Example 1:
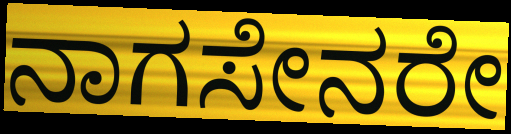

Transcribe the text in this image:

ನಾಗಸೇನರೇ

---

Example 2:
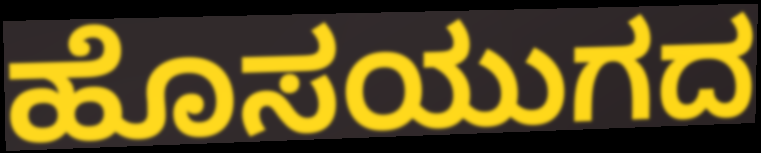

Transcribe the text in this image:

ಹೊಸಯುಗದ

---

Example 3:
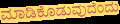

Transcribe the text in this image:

ಮಾಡಿಕೊಡುವುದೆಂದು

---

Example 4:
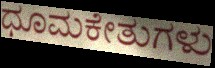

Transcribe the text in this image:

ಧೂಮಕೇತುಗಳು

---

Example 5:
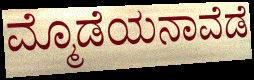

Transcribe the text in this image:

ಮ್ಮೊಡೆಯನಾವೆಡೆ